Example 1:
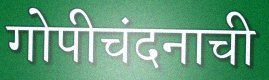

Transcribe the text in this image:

गोपीचंदनाची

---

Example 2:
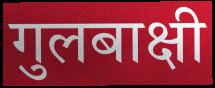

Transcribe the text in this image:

गुलबाक्षी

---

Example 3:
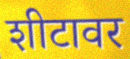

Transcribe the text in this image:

शीटावर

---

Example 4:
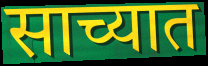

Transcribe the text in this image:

साच्यात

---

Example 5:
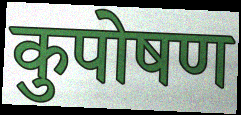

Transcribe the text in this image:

कुपोषण